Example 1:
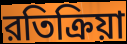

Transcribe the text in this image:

রতিক্রিয়া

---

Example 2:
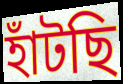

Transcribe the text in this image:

হাঁটছি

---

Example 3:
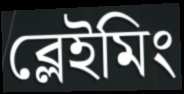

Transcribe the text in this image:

ব্লেইমিং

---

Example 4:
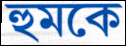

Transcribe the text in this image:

হুমকে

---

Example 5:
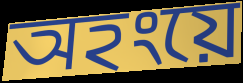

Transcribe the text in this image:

অহংয়ে